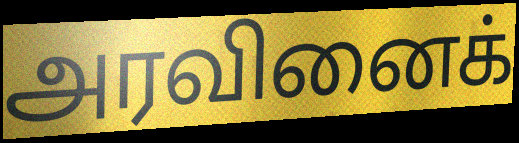
அரவினைக்